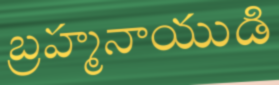
బ్రహ్మనాయుడి